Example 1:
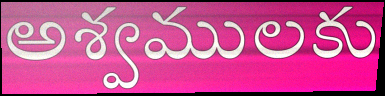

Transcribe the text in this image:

అశ్వములకు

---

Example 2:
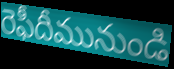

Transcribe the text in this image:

రెఫీదీమునుండి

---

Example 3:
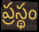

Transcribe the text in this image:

ప్రస్థం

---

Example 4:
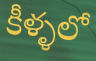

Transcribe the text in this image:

కీళ్ళలో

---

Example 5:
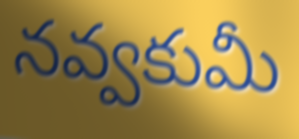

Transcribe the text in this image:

నవ్వకుమీ